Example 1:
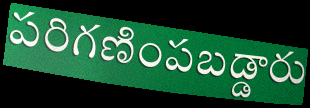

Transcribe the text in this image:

పరిగణింపబడ్డారు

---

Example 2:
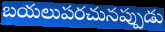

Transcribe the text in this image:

బయలుపరచునప్పుడు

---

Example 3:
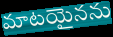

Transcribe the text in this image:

మాటయైనను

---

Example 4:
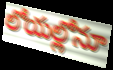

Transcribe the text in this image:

లోయల్లోనూ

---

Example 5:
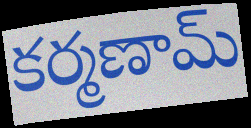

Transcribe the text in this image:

కర్మణామ్